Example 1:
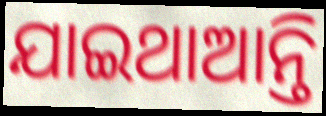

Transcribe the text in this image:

ଯାଇଥାଆନ୍ତି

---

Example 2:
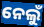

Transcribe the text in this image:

ନେଲୁଁ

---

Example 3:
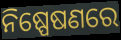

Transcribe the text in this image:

ନିଷ୍ପେଷଣରେ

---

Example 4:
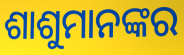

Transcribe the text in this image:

ଶାଶୁମାନଙ୍କର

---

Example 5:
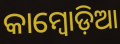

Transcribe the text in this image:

କାମ୍ବୋଡ଼ିଆ